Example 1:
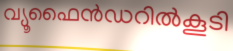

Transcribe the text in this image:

വ്യൂഫൈൻഡറിൽകൂടി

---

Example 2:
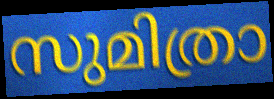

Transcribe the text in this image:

സുമിത്രാ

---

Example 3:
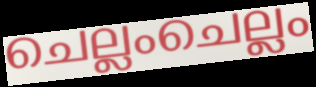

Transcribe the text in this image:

ചെല്ലംചെല്ലം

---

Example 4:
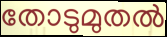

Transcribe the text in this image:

തോടുമുതൽ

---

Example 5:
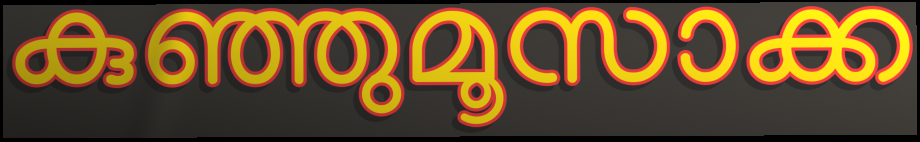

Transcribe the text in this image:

കുഞ്ഞുമൂസാക്ക